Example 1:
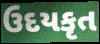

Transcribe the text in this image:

ઉદયકૃત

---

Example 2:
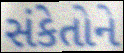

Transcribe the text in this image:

સંકેતોને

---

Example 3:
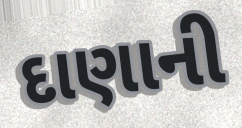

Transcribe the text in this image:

દાણાની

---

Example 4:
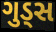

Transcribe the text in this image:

ગુડ્સ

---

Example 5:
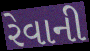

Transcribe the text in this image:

રેવાની